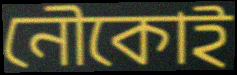
নৌকোই